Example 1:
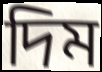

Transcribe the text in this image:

দিম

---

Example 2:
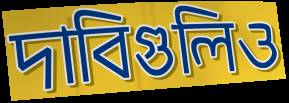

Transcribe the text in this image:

দাবিগুলিও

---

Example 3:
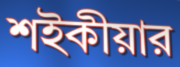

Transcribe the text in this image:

শইকীয়ার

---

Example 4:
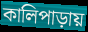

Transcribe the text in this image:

কালিপাড়ায়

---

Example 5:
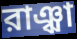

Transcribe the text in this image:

রাঞ্ঝা